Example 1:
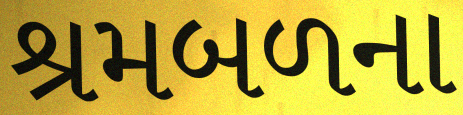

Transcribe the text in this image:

શ્રમબળના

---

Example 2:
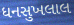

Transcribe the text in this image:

ધનસુખલાલ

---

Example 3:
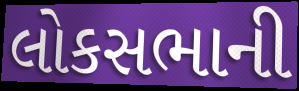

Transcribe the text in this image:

લોકસભાની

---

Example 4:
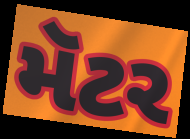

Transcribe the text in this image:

મૅટર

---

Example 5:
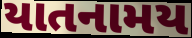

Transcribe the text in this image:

યાતનામય